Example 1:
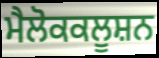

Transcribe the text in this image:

ਮੈਲੋਕਕਲੂਸ਼ਨ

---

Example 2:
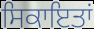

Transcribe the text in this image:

ਸਿਕਾਇਤਾਂ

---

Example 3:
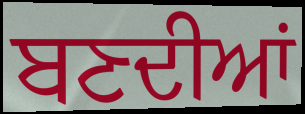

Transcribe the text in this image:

ਬਣਦੀਆਂ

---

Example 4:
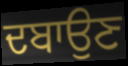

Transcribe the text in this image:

ਦਬਾਉਣ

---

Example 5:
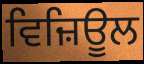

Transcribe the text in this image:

ਵਿਜ਼ਿਊਲ